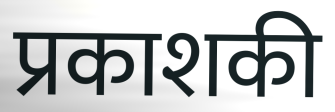
प्रकाशकी